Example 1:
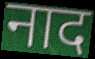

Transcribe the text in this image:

नाद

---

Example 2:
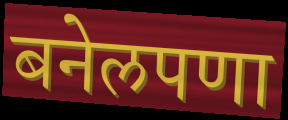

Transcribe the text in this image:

बनेलपणा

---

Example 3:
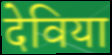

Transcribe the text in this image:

देविया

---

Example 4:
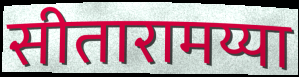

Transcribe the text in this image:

सीतारामय्या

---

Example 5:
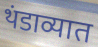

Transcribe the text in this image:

थंडाव्यात